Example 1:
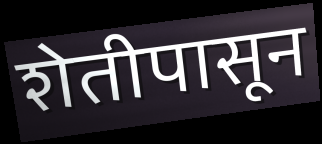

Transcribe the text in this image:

शेतीपासून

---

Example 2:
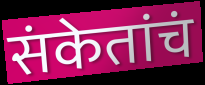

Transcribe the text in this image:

संकेतांचं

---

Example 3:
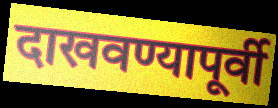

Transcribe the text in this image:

दाखवण्यापूर्वी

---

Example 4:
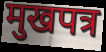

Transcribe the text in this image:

मुखपत्र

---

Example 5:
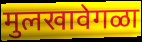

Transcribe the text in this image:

मुलखावेगळा